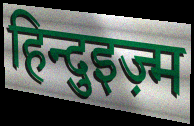
हिन्दुइज़्म